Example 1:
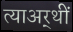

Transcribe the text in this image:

त्याअर्थीं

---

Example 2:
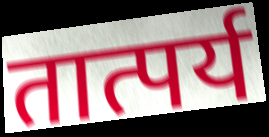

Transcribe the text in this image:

तात्पर्य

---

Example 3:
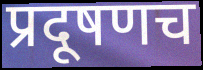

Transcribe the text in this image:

प्रदूषणच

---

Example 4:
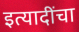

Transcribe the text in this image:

इत्यादींचा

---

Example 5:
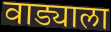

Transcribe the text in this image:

वाड्याला